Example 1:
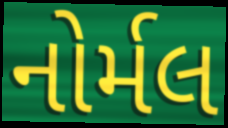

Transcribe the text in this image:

નોર્મલ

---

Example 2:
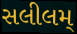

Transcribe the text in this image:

સલીલમ્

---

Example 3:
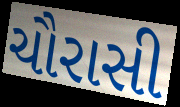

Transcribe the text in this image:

ચૌરાસી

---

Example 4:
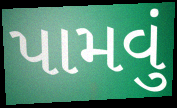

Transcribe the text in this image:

પામવું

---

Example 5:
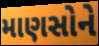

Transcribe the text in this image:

માણસોને